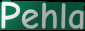
Pehla